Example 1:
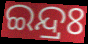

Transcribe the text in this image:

ଇନ୍ଦ୍ରଃ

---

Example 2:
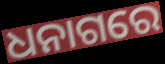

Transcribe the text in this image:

ଧନାଗରେ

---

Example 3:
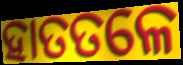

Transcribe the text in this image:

ହାତତଳେ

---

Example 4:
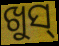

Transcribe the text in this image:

ଖୁସ୍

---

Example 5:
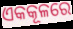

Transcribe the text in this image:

ଏକକୂଳରେ